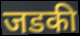
जडकी